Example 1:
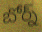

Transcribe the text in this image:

బోర్న్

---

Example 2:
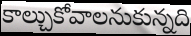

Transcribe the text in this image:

కాల్చుకోవాలనుకున్నది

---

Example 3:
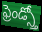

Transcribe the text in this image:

ఫ్రెండ్స్తో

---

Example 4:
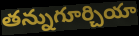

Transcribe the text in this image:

తన్నుగూర్చియా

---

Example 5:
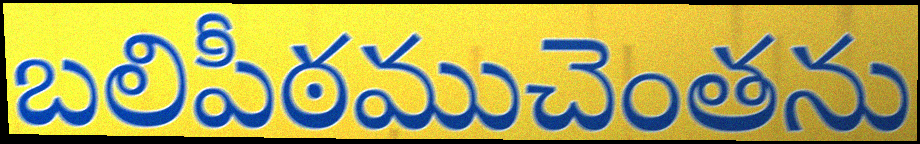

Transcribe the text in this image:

బలిపీఠముచెంతను